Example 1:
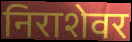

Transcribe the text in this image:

निराशेवर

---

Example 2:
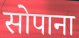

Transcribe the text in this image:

सोपाना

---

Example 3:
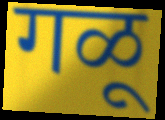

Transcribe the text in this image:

गळू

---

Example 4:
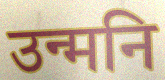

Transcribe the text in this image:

उन्मनि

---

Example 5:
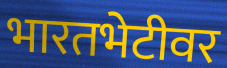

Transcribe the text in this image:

भारतभेटीवर